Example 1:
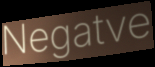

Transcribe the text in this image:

Negatve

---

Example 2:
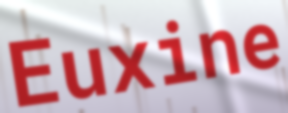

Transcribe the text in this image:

Euxine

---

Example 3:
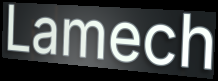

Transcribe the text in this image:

Lamech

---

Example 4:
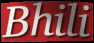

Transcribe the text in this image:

Bhili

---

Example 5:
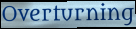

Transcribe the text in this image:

Overturning